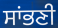
ਸਾਂਭਣੀ